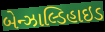
બેન્ઝાલ્ડિહાઇડ